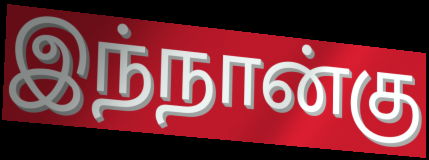
இந்நான்கு